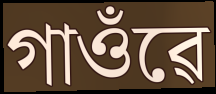
গাওঁৱে